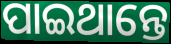
ପାଇଥାନ୍ତେ